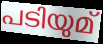
പടിയുമ്